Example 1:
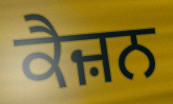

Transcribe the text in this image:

ਕੈਜ਼ਨ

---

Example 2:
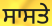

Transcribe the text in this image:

ਸਾਸਤੇ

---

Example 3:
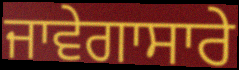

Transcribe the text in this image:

ਜਾਵੇਗਾਸਾਰੇ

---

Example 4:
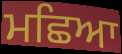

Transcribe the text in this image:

ਮਛਿਆ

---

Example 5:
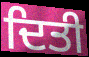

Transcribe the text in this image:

ਦਿਤੀ